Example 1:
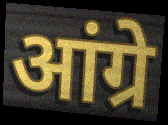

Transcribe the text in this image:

आंग्रे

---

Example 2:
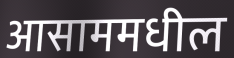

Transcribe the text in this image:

आसाममधील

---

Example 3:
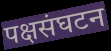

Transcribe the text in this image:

पक्षसंघटन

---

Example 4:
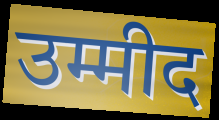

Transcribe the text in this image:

उम्मीद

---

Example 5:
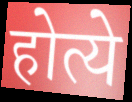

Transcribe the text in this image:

होत्ये